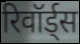
रिवॉर्ड्स